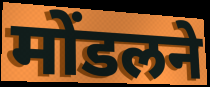
मोंडलने